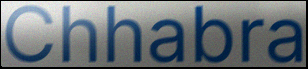
Chhabra